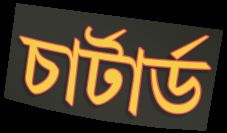
চার্টার্ড